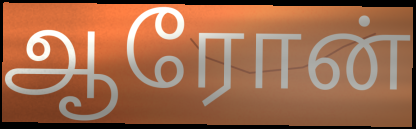
ஆரோன்